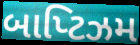
બાપ્ટિઝમ